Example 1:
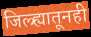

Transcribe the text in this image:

जिल्ह्यातूनही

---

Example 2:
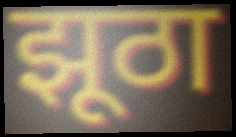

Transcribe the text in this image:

झूठा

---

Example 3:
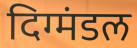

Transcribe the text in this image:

दिग्मंडल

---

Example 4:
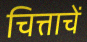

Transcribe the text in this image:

चित्ताचें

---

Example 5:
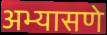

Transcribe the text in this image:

अभ्यासणे